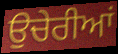
ਉਚੇਰੀਆਂ